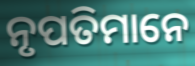
ନୃପତିମାନେ